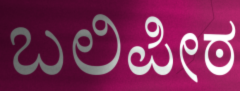
ಬಲಿಪೀಠ